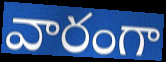
వారంగా